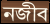
নজীব